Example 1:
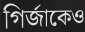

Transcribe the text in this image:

গির্জাকেও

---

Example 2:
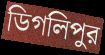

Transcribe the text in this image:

ডিগলিপুর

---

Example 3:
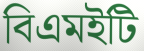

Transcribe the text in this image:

বিএমইটি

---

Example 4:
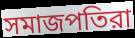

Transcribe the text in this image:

সমাজপতিরা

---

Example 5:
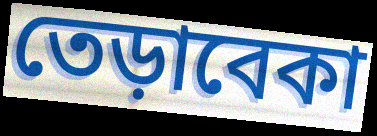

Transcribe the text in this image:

তেড়াবেকা